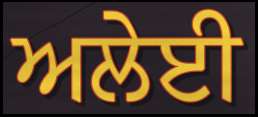
ਅਲੇਈ